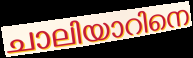
ചാലിയാറിനെ